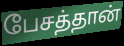
பேசத்தான்